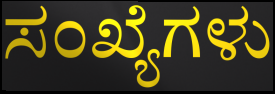
ಸಂಖ್ಯೆಗಳು